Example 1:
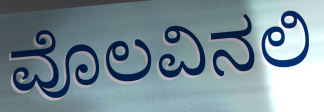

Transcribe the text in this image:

ವೊಲವಿನಲಿ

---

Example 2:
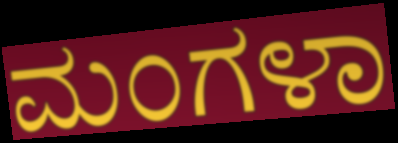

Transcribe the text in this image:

ಮಂಗಳಾ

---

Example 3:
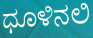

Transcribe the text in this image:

ಧೂಳಿನಲಿ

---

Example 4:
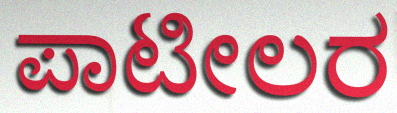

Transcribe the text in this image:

ಪಾಟೀಲರ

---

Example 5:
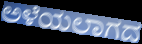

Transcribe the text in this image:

ಅಳೆಯಲಾಗದ